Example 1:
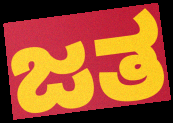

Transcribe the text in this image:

ಜತ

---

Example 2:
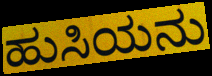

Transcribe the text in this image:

ಹುಸಿಯನು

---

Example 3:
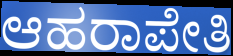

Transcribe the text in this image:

ಆಹರಾಪೇತಿ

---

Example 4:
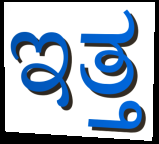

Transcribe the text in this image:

ಇತ್ತ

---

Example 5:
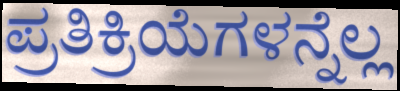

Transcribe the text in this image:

ಪ್ರತಿಕ್ರಿಯೆಗಳನ್ನೆಲ್ಲ